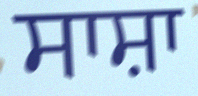
ਸਾਸ਼ਾ